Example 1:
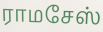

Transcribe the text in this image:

ராமசேஸ்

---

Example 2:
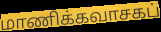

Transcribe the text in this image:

மாணிக்கவாசகப்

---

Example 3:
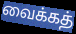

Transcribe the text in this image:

வைக்கத்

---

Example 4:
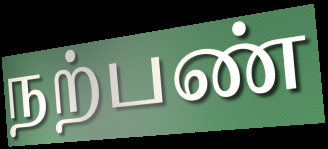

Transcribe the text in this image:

நற்பண்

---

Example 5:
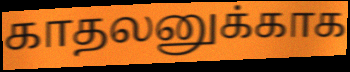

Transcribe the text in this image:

காதலனுக்காக